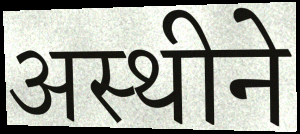
अस्थीने